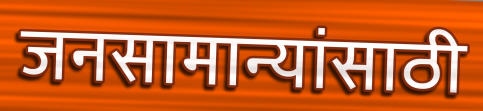
जनसामान्यांसाठी